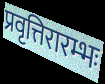
प्रवृत्तिरारम्भः